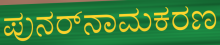
ಪುನರ್‌ನಾಮಕರಣ